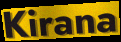
Kirana